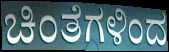
ಚಿಂತೆಗಳಿಂದ